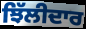
ਝਿੱਲੀਦਾਰ